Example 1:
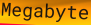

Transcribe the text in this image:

Megabyte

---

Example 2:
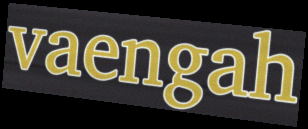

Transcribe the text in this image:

vaengah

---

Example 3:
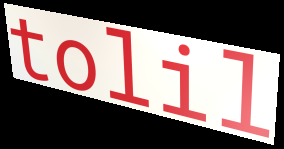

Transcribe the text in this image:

tolil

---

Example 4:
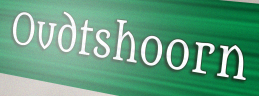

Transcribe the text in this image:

Oudtshoorn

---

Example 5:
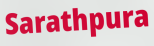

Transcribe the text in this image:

Sarathpura